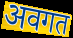
अवगत